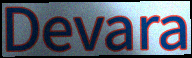
Devara